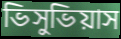
ভিসুভিয়াস